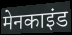
मेनकाइंड